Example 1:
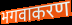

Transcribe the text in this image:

भगवाकरण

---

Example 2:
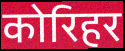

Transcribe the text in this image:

कोरिहर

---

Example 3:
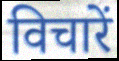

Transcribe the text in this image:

विचारें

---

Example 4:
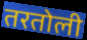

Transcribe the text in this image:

तरतोली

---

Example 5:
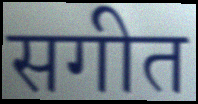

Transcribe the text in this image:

सगीत